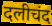
दलीचंद